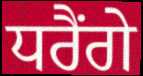
ਧਰੈਂਗੇ